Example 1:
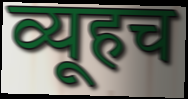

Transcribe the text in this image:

व्यूहच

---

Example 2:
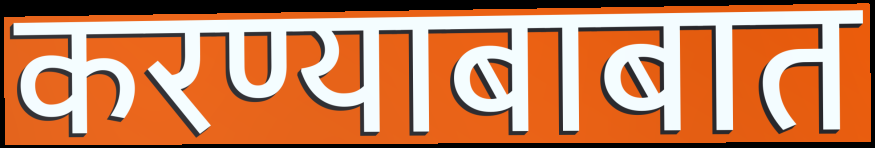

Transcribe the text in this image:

करण्याबाबात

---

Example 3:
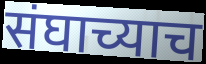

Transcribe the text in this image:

संघाच्याच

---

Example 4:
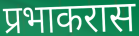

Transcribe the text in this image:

प्रभाकरास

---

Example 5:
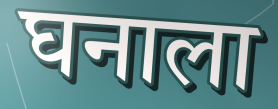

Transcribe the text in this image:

घनाला